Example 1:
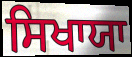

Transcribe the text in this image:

ਸਿਖਾਯਾ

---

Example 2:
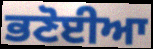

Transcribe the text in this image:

ਭਣੋਈਆ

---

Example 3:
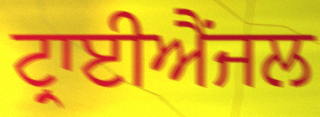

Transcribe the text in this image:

ਟ੍ਰਾਈਐਂਜਲ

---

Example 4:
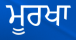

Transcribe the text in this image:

ਮੂਰਖਾ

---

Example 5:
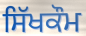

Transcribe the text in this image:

ਸਿੱਖਕੌਮ